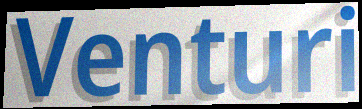
Venturi